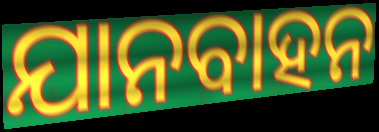
ଯାନବାହନ